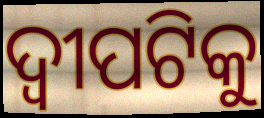
ଦ୍ୱୀପଟିକୁ